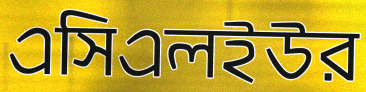
এসিএলইউর